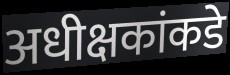
अधीक्षकांकडे